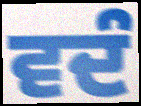
ਵਦੰ